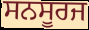
ਸਨਸੂਰਜ